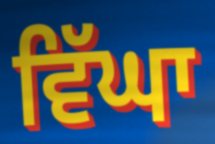
ਵਿੱਘਾ